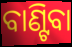
ବାଣ୍ଟିବା